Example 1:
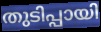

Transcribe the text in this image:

തുടിപ്പായി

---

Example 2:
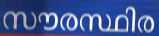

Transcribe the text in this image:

സൗരസ്ഥിര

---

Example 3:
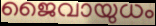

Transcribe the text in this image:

ജൈവായുധം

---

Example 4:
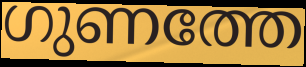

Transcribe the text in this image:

ഗുണത്തേ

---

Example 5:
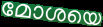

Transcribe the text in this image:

മോശയെ